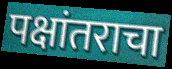
पक्षांतराचा